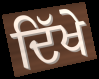
ਦਿੱਖੇ